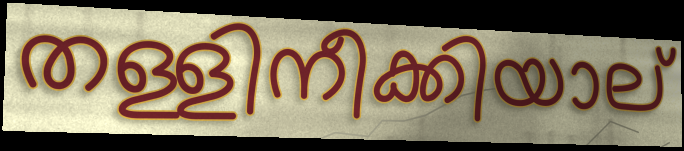
തള്ളിനീക്കിയാല്